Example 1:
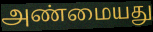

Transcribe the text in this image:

அண்மையது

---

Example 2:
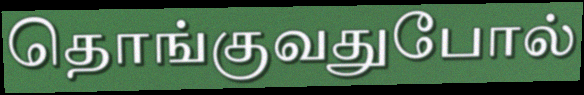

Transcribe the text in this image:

தொங்குவதுபோல்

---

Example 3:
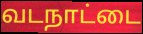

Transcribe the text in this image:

வடநாட்டை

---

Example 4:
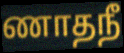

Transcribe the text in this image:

ணாதநீ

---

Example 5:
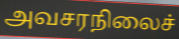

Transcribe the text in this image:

அவசரநிலைச்